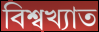
বিশ্বখ্যাত